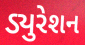
ડ્યુરેશન